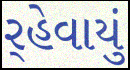
ર્‌હેવાયું